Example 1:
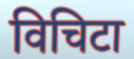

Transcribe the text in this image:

विचिटा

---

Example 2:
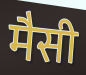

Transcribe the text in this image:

मैसी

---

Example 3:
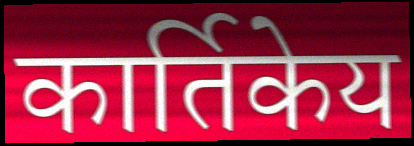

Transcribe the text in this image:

कार्तिकेय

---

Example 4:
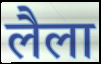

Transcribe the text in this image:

लैला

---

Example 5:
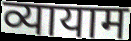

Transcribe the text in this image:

व्यायाम